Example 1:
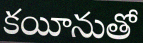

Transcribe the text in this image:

కయీనుతో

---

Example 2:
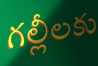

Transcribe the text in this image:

గల్లీలకు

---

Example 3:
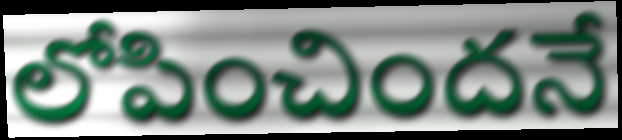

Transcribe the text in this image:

లోపించిందనే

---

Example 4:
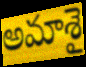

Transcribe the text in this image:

అమాశై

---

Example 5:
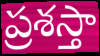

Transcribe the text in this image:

ప్రశస్తా